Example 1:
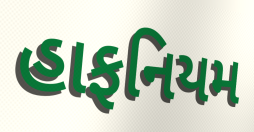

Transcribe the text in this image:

હાફનિયમ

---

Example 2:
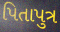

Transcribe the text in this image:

પિતાપુત્ર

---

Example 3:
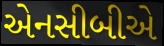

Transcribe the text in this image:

એનસીબીએ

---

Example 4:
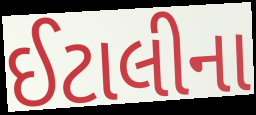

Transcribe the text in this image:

ઈટાલીના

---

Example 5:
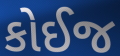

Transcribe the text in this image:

કોઈજ